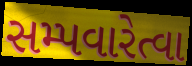
સમ્પવારેત્વા